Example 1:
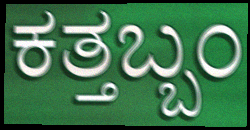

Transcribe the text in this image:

ಕತ್ತಬ್ಬಂ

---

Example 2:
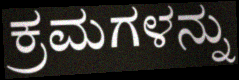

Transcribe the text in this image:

ಕ್ರಮಗಳನ್ನು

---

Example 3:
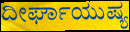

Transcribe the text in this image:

ದೀರ್ಘಾಯುಷ್ಯ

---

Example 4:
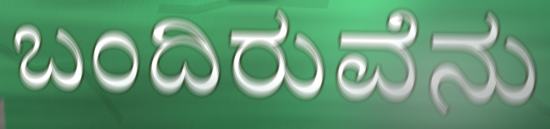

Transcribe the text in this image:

ಬಂದಿರುವೆನು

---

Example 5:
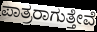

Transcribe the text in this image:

ಪಾತ್ರರಾಗುತ್ತೇವೆ